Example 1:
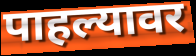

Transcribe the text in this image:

पाहल्यावर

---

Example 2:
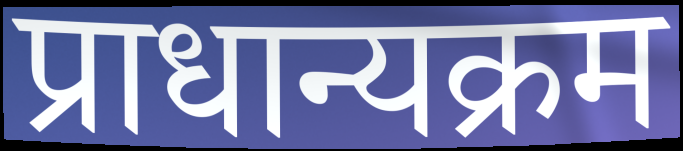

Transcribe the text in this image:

प्राधान्यक्रम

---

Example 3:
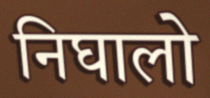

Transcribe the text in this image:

निघालो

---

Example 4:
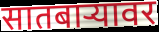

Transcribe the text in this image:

सातबाऱ्यावर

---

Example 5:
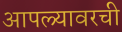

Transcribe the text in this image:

आपल्यावरची